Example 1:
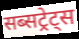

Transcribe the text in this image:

सब्सट्रेट्स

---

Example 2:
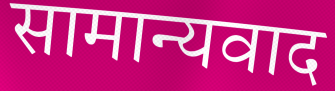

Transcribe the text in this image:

सामान्यवाद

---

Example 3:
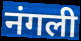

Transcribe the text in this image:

नंगली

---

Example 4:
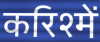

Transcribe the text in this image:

करिश्में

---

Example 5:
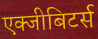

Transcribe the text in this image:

एक्जीबिटर्स